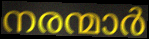
നരന്മാർ